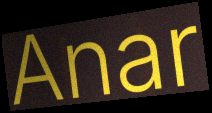
Anar